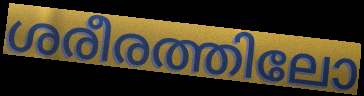
ശരീരത്തിലോ